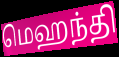
மெஹந்தி